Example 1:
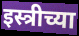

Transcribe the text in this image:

इस्त्रीच्या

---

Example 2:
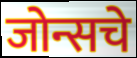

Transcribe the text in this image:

जोन्सचे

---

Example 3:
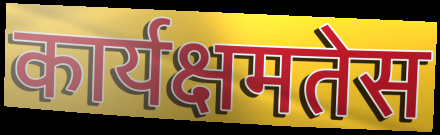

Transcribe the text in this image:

कार्यक्षमतेस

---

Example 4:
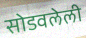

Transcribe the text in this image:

सोडवलेली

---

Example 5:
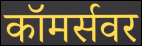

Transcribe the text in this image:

कॉमर्सवर